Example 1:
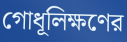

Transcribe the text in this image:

গোধূলিক্ষণের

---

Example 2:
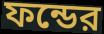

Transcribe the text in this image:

ফন্ডের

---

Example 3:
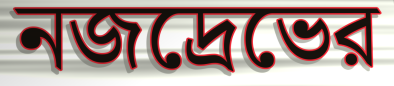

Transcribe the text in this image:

নজদ্রেভের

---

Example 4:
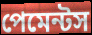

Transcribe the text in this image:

পেমেন্টস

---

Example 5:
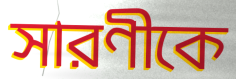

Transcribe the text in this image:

সারণীকে